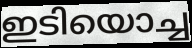
ഇടിയൊച്ച